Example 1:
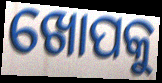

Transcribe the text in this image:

ଖୋପକୁ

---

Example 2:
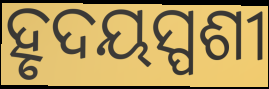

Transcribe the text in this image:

ହୃଦୟସ୍ପଶୀ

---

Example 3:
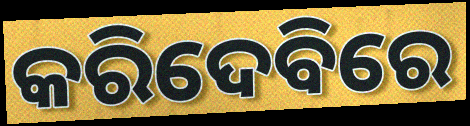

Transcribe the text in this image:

କରିଦେବିରେ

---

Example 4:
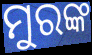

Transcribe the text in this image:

ମୁରଙ୍କ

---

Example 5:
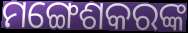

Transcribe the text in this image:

ମଙ୍ଗେଶକରଙ୍କ